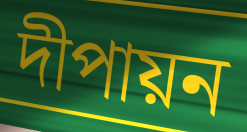
দীপায়ন